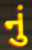
નું